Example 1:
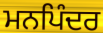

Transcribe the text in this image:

ਮਨਪਿੰਦਰ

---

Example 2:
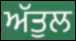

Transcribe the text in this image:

ਅੱਤੁਲ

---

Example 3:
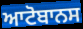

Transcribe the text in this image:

ਆਟੋਬਾਨਸ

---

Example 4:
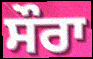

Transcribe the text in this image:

ਸੌਰਾ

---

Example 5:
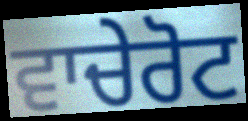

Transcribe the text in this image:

ਵਾਚੇਰੋਟ